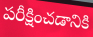
పరీక్షించడానికి